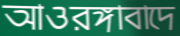
আওরঙ্গাবাদে